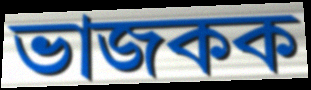
ভাজকক